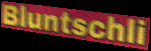
Bluntschli